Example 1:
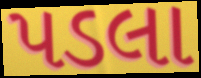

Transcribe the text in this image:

પડલા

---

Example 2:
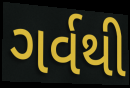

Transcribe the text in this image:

ગર્વથી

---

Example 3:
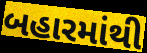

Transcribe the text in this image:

બહારમાંથી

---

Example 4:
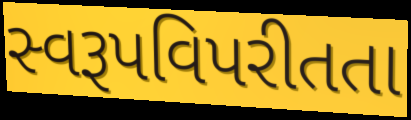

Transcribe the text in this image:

સ્વરૂપવિપરીતતા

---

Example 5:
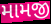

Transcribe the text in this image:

મામજી